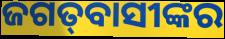
ଜଗତ୍‍ବାସୀଙ୍କର